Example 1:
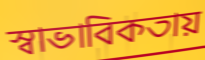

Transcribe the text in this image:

স্বাভাবিকতায়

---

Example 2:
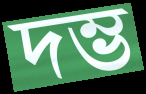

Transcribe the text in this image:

দম্ভ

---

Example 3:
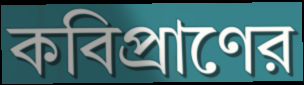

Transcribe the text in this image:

কবিপ্রাণের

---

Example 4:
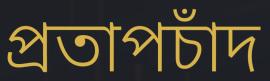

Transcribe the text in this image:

প্রতাপচাঁদ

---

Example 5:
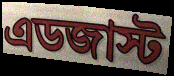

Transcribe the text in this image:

এডজাস্ট